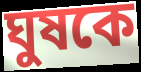
ঘুষকে